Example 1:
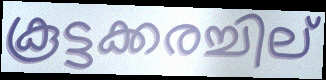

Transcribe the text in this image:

കൂട്ടക്കരച്ചില്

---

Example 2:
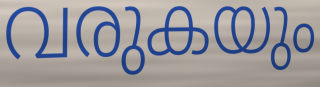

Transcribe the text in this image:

വരുകയും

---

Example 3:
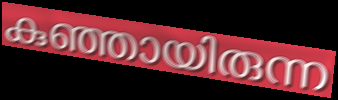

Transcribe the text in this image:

കുഞ്ഞായിരുന്ന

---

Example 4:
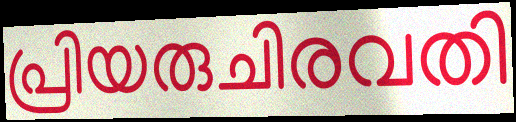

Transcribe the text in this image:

പ്രിയരുചിരവതി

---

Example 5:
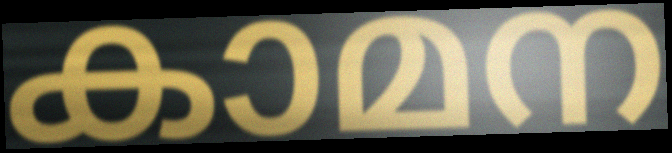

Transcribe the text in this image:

കാമന